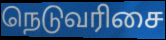
நெடுவரிசை